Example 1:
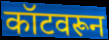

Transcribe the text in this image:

कॉटवरून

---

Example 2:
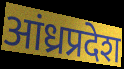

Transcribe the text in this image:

आंध्रप्रदेश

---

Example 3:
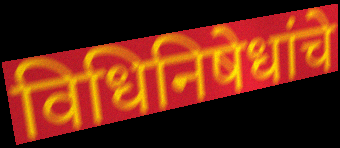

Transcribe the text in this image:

विधिनिषेधांचे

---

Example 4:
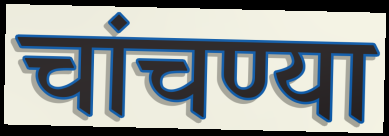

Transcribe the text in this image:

चांचण्या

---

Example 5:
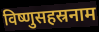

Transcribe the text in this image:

विष्णुसहस्रनाम